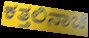
ಕತ್ತಲಿನಾಚೆ